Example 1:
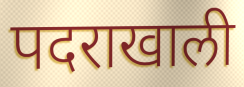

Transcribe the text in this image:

पदराखाली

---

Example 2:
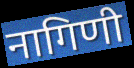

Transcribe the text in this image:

नागिणी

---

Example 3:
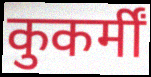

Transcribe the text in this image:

कुकर्मीं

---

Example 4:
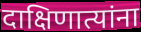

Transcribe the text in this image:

दाक्षिणात्यांना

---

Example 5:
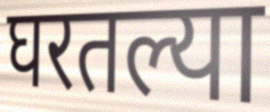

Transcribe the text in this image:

घरतल्या